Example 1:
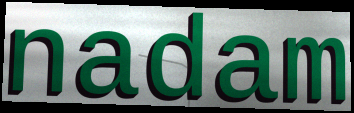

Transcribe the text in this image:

nadam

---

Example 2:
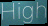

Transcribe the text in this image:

High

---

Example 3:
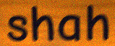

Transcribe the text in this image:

shah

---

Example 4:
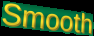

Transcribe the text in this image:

Smooth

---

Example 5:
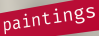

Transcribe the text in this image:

paintings